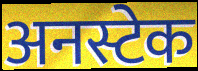
अनस्टेक